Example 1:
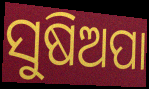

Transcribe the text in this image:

ସୁଷିଅପା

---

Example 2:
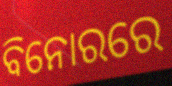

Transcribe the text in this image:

ବିନୋରରେ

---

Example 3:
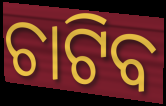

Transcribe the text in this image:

ଚାଟିବ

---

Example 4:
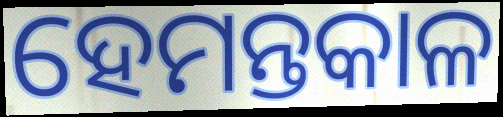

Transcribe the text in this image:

ହେମନ୍ତକାଳ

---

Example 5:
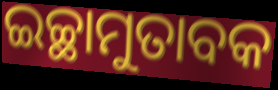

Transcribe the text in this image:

ଇଚ୍ଛାମୁତାବକ